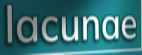
lacunae